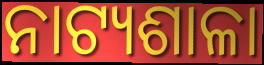
ନାଟ୍ୟଶାଳା